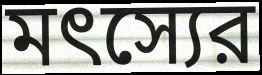
মৎস্যের